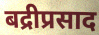
बद्रीप्रसाद